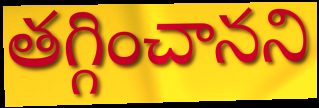
తగ్గించానని